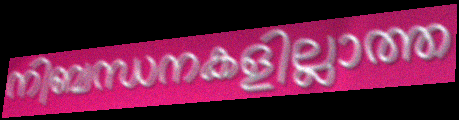
നിബന്ധനകളില്ലാത്ത